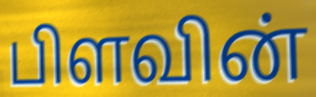
பிளவின்